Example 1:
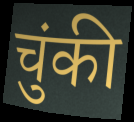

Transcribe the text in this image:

चुंकी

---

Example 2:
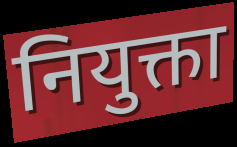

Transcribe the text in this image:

नियुक्ता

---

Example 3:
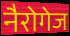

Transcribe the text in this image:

नैरोगेज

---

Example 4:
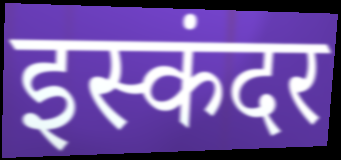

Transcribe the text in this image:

इस्कंदर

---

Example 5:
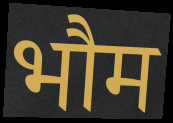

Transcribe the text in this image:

भौम